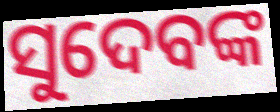
ସୁଦେବଙ୍କ